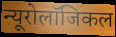
न्यूरोलॉजिकल